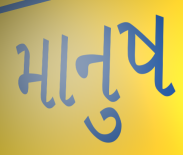
માનુષ